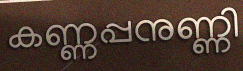
കണ്ണപ്പനുണ്ണി